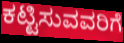
ಕಟ್ಟಿಸುವವರಿಗೆ